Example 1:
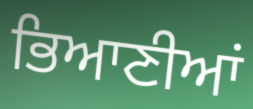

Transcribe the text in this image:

ਭਿਆਣੀਆਂ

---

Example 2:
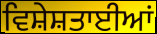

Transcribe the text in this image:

ਵਿਸ਼ੇਸ਼ਤਾਈਆਂ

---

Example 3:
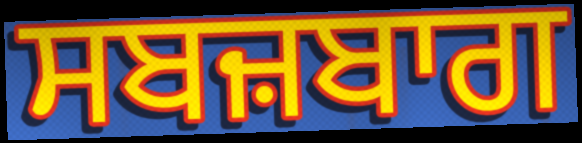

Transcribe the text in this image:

ਸਬਜ਼ਬਾਗ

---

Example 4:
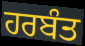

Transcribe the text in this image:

ਹਰਬੰਤ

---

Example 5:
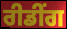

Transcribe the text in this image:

ਰੀਡੀਂਗ